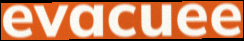
evacuee